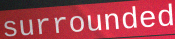
surrounded